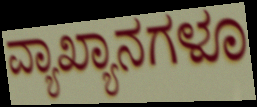
ವ್ಯಾಖ್ಯಾನಗಳೂ